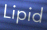
Lipid